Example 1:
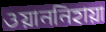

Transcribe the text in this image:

ওয়াননিহায়া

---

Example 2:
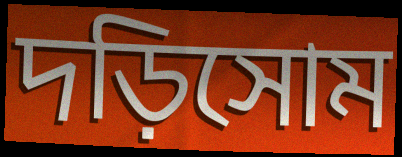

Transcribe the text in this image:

দড়িসোম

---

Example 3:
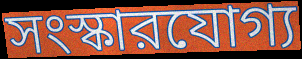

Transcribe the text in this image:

সংস্কারযোগ্য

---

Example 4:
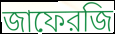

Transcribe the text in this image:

জাফেরজি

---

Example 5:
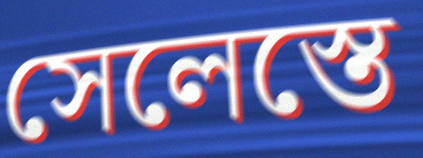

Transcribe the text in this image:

সেলেস্তে